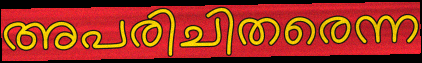
അപരിചിതരെന്ന